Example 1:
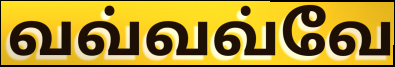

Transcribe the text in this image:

வவ்வவ்வே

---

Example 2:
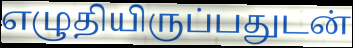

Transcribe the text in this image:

எழுதியிருப்பதுடன்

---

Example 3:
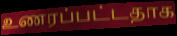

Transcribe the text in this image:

உணரப்பட்டதாக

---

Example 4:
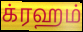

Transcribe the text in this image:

க்ரஹம்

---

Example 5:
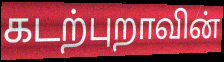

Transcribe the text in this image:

கடற்புறாவின்